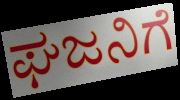
ಘಜನಿಗೆ